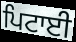
ਪਿਟਾਈ